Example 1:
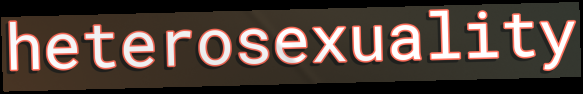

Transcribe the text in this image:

heterosexuality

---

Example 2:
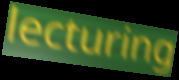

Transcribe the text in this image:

lecturing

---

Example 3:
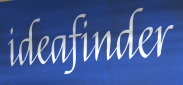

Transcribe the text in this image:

ideafinder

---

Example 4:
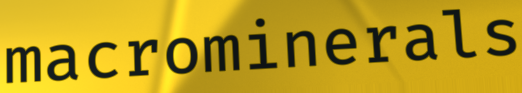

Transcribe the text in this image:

macrominerals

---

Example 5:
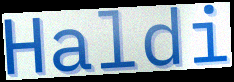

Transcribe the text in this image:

Haldi